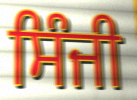
ਸਿੰਜੀ